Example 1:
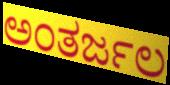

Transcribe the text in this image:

ಅಂತರ್ಜಲ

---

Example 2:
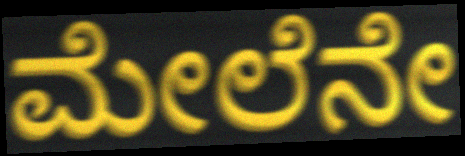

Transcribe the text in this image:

ಮೇಲೆನೇ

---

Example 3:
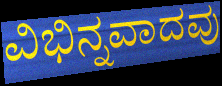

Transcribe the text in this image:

ವಿಭಿನ್ನವಾದವು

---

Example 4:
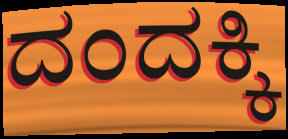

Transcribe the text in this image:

ದಂದಕ್ಕಿ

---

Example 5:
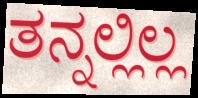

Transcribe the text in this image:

ತನ್ನಲ್ಲಿಲ್ಲ